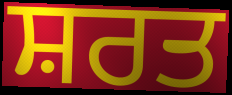
ਸ਼ਰਤ